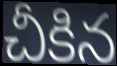
చీకిన